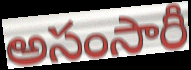
అసంసారీ